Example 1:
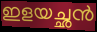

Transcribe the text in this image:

ഇളയച്ഛൻ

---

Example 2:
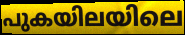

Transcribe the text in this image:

പുകയിലയിലെ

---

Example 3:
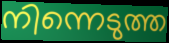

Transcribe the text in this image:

നിന്നെടുത്ത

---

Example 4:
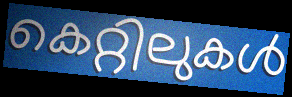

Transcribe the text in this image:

കെറ്റിലുകൾ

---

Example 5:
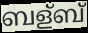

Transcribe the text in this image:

ബള്ബ്